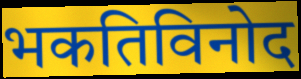
भकतिविनोद